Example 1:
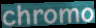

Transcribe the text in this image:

chromo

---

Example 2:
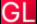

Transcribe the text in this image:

GL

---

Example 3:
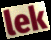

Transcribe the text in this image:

lek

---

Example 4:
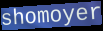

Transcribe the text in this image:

shomoyer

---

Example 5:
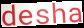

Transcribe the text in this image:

desha